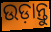
ଉଡ଼ାନ୍ତୁ